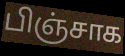
பிஞ்சாக